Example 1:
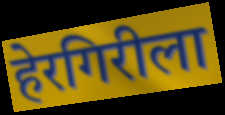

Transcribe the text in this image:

हेरगिरीला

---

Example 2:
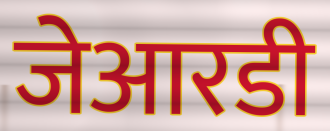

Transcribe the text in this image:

जेआरडी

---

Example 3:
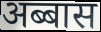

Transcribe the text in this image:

अब्बास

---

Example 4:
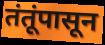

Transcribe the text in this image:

तंतूंपासून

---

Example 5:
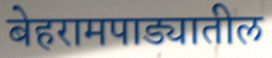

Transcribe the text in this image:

बेहरामपाड्यातील